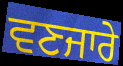
ਵਣਜਾਰੇ